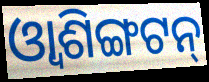
ଓ୍ୱାଶିଙ୍ଗଟନ୍